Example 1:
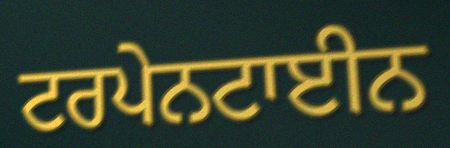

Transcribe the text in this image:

ਟਰਪੇਨਟਾਈਨ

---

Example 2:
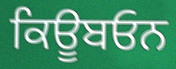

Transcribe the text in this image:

ਕਿਊਬਓਨ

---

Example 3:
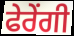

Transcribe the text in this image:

ਫੇਰੇਂਗੀ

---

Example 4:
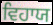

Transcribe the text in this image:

ਵਿਹਾਯ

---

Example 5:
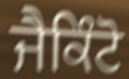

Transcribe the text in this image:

ਜੈਕਿੰਟੋ